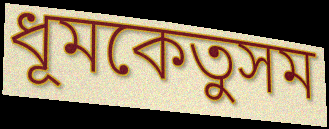
ধূমকেতুসম